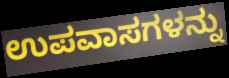
ಉಪವಾಸಗಳನ್ನು